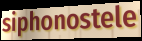
siphonostele